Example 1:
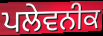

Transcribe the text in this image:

ਪਲੇਵਨੀਕ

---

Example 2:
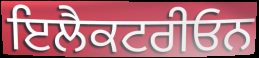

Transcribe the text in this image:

ਇਲੈਕਟਰੀਓਨ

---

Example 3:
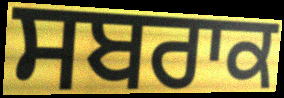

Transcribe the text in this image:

ਸਬਰਾਕ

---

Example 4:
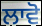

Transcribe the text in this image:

ਲਾਵੋ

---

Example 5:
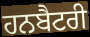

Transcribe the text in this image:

ਹਨਬੈਟਰੀ